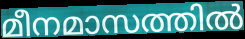
മീനമാസത്തിൽ